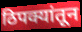
ठिपक्यांतून